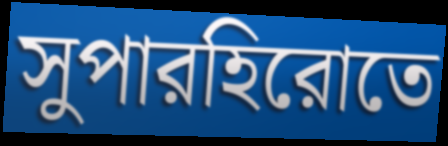
সুপারহিরোতে